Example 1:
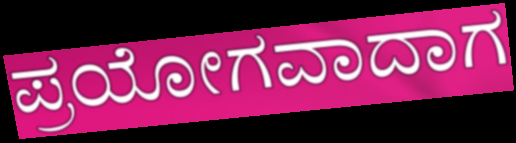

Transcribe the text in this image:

ಪ್ರಯೋಗವಾದಾಗ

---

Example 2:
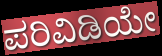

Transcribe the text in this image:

ಪರಿವಿಡಿಯೇ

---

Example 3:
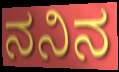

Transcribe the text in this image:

ನನಿನ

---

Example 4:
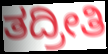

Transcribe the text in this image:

ತದ್ರೀತಿ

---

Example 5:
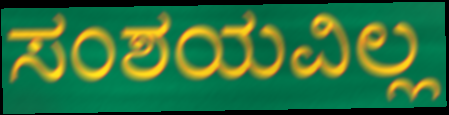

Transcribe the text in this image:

ಸಂಶಯವಿಲ್ಲ